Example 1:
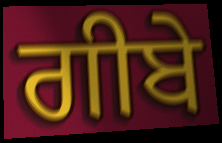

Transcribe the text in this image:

ਗੀਬੇ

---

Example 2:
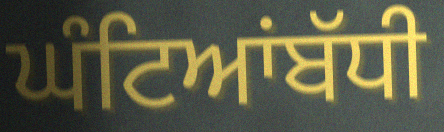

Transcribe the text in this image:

ਘੰਟਿਆਂਬੱਧੀ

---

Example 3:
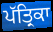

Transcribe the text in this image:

ਪੱਤ੍ਰਿਕਾ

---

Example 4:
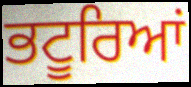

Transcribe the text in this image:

ਭਟੂਰਿਆਂ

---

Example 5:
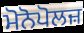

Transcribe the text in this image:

ਮੋਨੋਪੋਲਜ਼